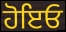
ਹੋਇਓ